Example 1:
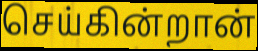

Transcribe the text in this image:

செய்கின்றான்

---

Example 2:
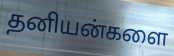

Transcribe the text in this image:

தனியன்களை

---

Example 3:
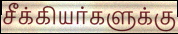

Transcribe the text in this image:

சீக்கியர்களுக்கு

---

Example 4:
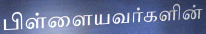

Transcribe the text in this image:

பிள்ளையவர்களின்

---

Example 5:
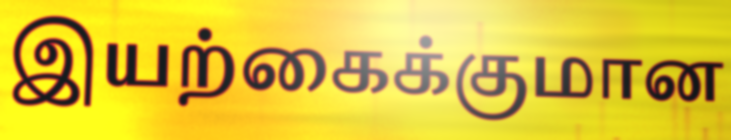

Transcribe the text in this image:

இயற்கைக்குமான